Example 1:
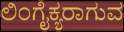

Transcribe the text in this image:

ಲಿಂಗೈಕ್ಯರಾಗುವ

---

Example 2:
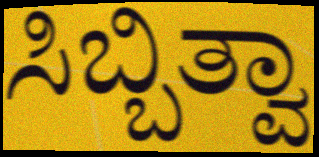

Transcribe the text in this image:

ಸಿಬ್ಬಿತ್ವಾ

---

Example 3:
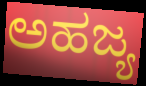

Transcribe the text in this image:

ಅಹಜ್ಯ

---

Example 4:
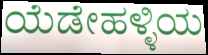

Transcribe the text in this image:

ಯೆಡೇಹಳ್ಳಿಯ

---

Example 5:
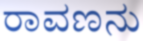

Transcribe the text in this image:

ರಾವಣನು